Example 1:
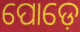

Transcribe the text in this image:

ପୋଡ଼େ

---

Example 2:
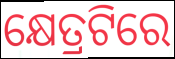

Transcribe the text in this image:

କ୍ଷେତ୍ରଟିରେ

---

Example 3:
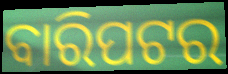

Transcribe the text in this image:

ବାରିପଟର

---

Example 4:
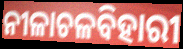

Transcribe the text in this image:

ନୀଳାଚଳବିହାରୀ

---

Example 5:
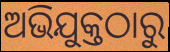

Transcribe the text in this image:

ଅଭିଯୁକ୍ତଠାରୁ